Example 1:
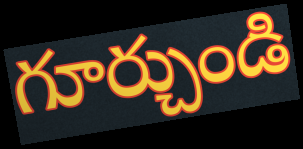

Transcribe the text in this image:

గూర్చుండి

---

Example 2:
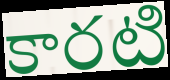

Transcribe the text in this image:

కారటి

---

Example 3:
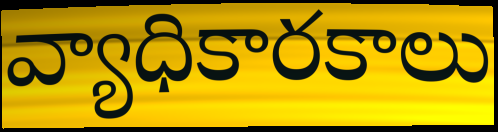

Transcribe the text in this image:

వ్యాధికారకాలు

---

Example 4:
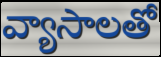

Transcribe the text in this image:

వ్యాసాలతో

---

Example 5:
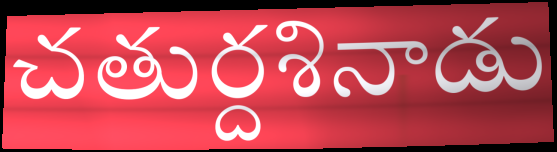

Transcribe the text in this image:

చతుర్దశినాడు